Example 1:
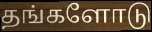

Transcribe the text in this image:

தங்களோடு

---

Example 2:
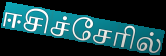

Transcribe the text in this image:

ஈசிச்சேரில்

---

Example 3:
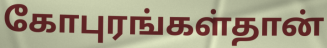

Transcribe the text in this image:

கோபுரங்கள்தான்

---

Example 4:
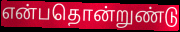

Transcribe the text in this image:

என்பதொன்றுண்டு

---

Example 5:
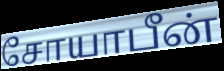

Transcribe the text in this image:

சோயாபீன்